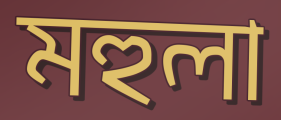
মহুলা